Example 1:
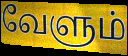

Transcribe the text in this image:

வேளும்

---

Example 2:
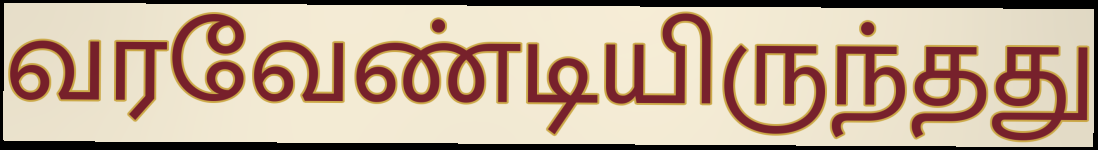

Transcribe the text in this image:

வரவேண்டியிருந்தது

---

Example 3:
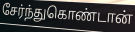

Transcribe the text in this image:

சேர்ந்துகொண்டான்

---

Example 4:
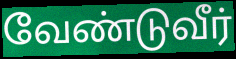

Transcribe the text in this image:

வேண்டுவீர்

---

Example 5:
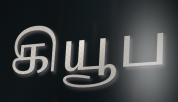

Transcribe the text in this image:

கியூப